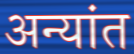
अन्यांत